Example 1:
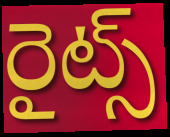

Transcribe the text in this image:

రైట్స్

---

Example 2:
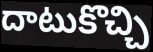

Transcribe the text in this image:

దాటుకొచ్చి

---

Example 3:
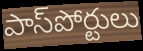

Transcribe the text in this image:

పాస్‌పోర్టులు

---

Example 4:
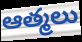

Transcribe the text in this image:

ఆత్మలు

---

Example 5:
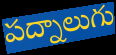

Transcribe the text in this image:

పద్నాలుగు